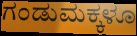
ಗಂಡುಮಕ್ಕಳೂ